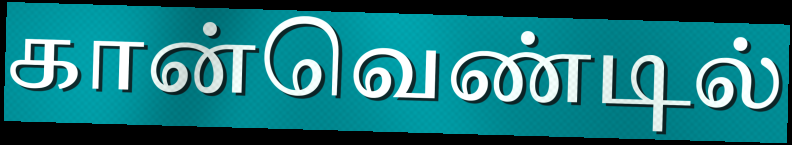
கான்வெண்டில்